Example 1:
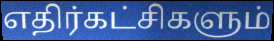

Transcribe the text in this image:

எதிர்கட்சிகளும்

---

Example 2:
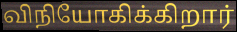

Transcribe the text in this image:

விநியோகிக்கிறார்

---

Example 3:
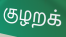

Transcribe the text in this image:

குழறக்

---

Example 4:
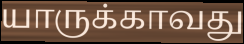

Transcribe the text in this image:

யாருக்காவது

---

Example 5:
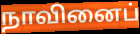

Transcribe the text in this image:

நாவினைப்